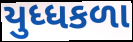
યુધ્ધકળા